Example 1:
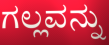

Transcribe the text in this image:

ಗಲ್ಲವನ್ನು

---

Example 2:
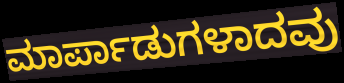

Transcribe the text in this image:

ಮಾರ್ಪಾಡುಗಳಾದವು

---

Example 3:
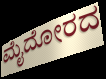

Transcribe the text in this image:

ಮೈದೋರದ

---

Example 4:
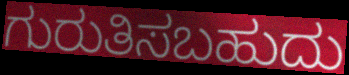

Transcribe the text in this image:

ಗುರುತಿಸಬಹುದು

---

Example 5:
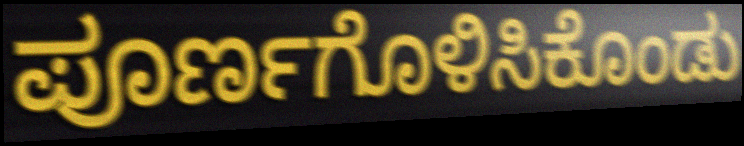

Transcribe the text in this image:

ಪೂರ್ಣಗೊಳಿಸಿಕೊಂಡು